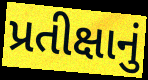
પ્રતીક્ષાનું